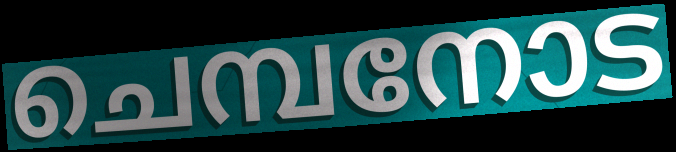
ചെമ്പനോട